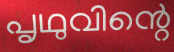
പൃഥുവിന്റെ